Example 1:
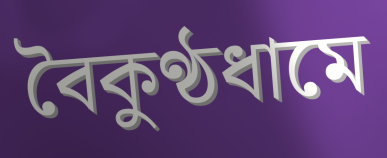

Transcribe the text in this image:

বৈকুণ্ঠধামে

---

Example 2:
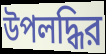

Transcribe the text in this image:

উপলদ্ধির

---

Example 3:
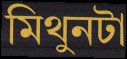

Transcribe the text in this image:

মিথুনটা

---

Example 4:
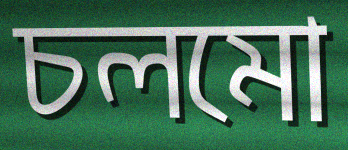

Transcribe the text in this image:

চলমো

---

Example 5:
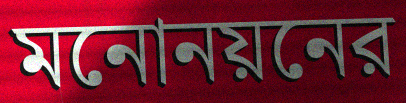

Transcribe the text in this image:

মনোনয়নের